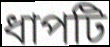
ধাপটি